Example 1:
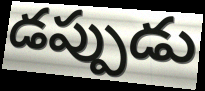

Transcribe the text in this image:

డప్పుడు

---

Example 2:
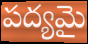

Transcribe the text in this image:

పద్యమై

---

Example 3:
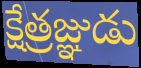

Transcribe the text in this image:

క్షేత్రజ్ఞుడు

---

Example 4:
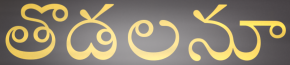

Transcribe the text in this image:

తొడలనూ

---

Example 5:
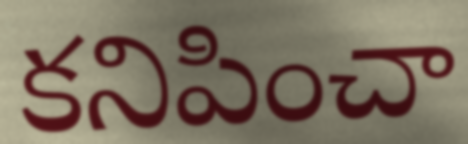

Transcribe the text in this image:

కనిపించా